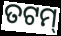
ତଟମ୍